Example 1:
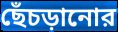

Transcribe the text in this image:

ছেঁচড়ানোর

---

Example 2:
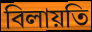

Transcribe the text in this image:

বিলায়তি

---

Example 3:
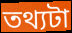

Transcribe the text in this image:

তথ্যটা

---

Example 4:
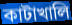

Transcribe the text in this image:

কাটাখালি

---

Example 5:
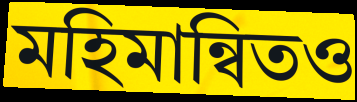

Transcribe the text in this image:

মহিমান্বিতও